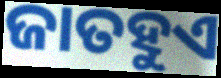
ଜାତହୁଏ